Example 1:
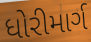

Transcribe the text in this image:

ધોરીમાર્ગ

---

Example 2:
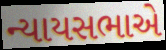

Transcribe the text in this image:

ન્યાયસભાએ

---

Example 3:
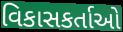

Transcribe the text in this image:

વિકાસકર્તાઓ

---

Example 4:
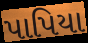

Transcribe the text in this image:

પાપિયા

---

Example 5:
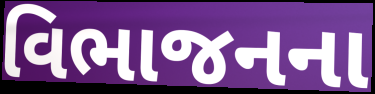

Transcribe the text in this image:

વિભાજનના